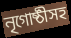
নৃগোষ্ঠীসহ